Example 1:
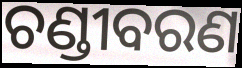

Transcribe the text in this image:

ଚଣ୍ଡୀବରଣ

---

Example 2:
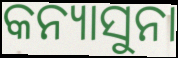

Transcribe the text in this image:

କନ୍ୟାସୁନା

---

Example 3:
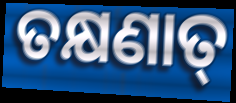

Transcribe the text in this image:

ତକ୍ଷଣାତ୍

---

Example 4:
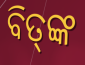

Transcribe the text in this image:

ବିତ୍‌ଙ୍କ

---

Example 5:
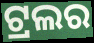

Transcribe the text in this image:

ଟ୍ରଲର